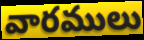
వారములు